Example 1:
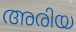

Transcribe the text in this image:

അരിയ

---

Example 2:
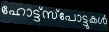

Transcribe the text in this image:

ഹോട്ട്സ്പോട്ടുകൾ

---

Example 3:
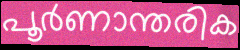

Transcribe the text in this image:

പൂർണാന്തരിക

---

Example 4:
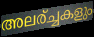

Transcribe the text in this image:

അലര്ച്ചകളും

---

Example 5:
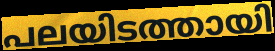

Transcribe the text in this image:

പലയിടത്തായി